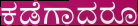
ಕಡೆಗಾದರೂ